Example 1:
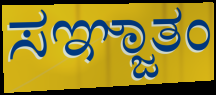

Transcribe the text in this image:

ಸಞ್ಜಾತಂ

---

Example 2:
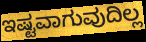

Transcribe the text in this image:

ಇಷ್ಟವಾಗುವುದಿಲ್ಲ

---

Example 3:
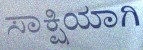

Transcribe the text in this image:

ಸಾಕ್ಷಿಯಾಗಿ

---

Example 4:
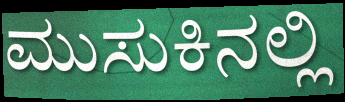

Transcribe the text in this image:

ಮುಸುಕಿನಲ್ಲಿ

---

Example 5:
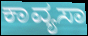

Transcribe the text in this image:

ಕಾವ್ಯಸಾ